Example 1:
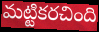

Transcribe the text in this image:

మట్టికరచింది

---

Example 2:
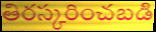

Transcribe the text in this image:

తిరస్కరించబడి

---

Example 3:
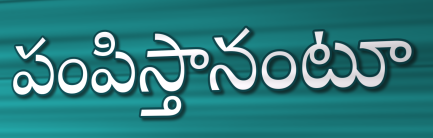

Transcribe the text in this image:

పంపిస్తానంటూ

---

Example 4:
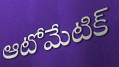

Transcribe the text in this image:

ఆటోమేటిక్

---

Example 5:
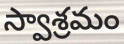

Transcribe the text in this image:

స్వాశ్రమం